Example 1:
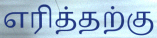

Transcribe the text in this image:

எரித்தற்கு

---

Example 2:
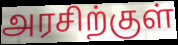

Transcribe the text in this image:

அரசிற்குள்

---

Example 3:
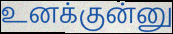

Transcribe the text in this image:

உனக்குன்னு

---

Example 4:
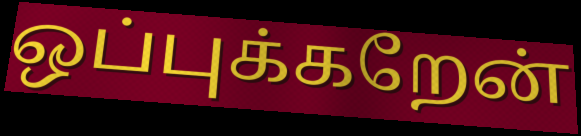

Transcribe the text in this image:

ஒப்புக்கறேன்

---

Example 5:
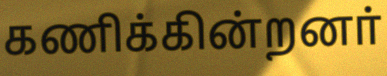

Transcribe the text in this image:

கணிக்கின்றனர்